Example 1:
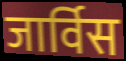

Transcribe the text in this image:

जार्विस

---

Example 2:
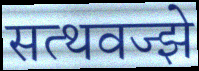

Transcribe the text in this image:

सत्थवज्झे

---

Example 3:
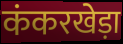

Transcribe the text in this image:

कंकरखेड़ा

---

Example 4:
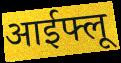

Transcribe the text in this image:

आईफ्लू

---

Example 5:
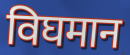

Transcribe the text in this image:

विघमान